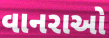
વાનરાઓ